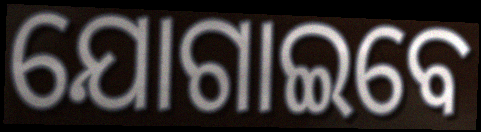
ଯୋଗାଇବେ